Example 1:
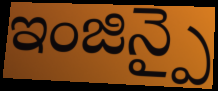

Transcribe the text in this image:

ఇంజిన్పై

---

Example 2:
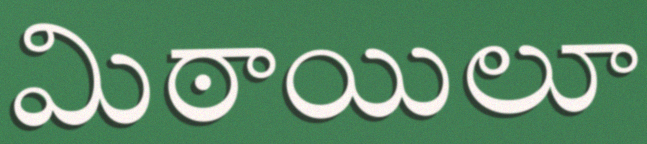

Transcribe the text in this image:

మిఠాయిలూ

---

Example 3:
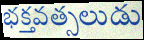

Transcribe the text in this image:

భక్తవత్సలుడు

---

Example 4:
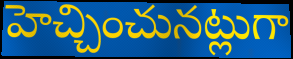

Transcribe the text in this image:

హెచ్చించునట్లుగా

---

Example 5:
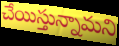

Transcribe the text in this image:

చేయిస్తున్నామని